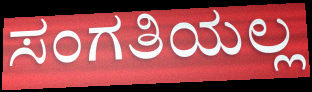
ಸಂಗತಿಯಲ್ಲ